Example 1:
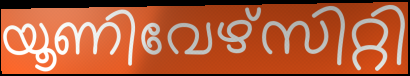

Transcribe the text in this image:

യൂണിവേഴ്സിറ്റി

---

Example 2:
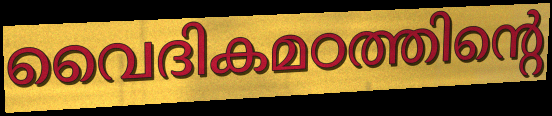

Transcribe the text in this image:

വൈദികമഠത്തിന്റെ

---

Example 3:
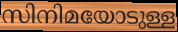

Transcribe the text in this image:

സിനിമയോടുള്ള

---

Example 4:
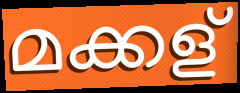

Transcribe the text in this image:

മക്കള്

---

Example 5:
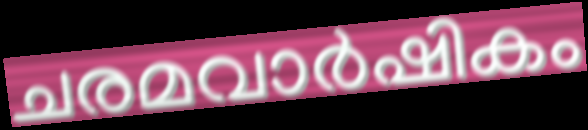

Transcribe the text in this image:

ചരമവാർഷികം